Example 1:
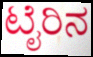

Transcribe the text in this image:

ಟೈರಿನ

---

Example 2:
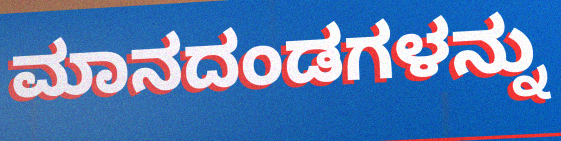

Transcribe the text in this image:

ಮಾನದಂಡಗಳನ್ನು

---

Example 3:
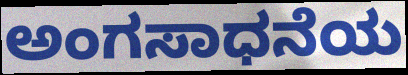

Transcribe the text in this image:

ಅಂಗಸಾಧನೆಯ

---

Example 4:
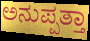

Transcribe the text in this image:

ಅನುಪ್ಪತ್ತಾ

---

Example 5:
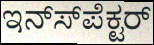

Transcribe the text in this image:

ಇನ್ಸ್‍ಪೆಕ್ಟರ್